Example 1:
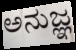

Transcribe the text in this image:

ಅನುಜ್ಞ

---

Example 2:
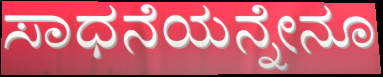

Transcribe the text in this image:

ಸಾಧನೆಯನ್ನೇನೂ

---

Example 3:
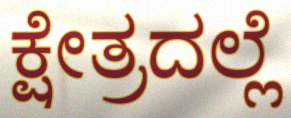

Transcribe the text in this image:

ಕ್ಷೇತ್ರದಲ್ಲೆ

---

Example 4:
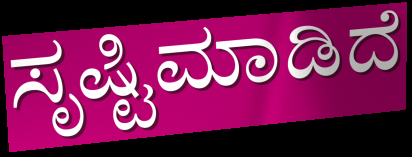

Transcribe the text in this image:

ಸೃಷ್ಟಿಮಾಡಿದೆ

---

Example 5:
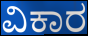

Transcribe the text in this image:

ವಿಕಾರ